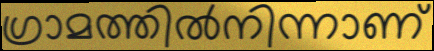
ഗ്രാമത്തിൽനിന്നാണ്